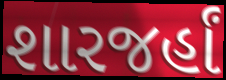
શારજર્હાં